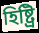
হিষ্ট্রি